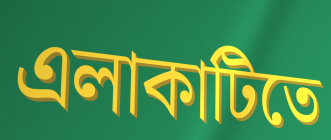
এলাকাটিতে